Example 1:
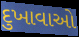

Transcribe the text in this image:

દુખાવાઓ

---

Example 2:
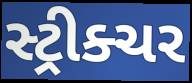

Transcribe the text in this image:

સ્ટ્રીક્ચર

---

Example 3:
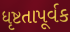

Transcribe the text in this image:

ધૃષ્ટતાપૂર્વક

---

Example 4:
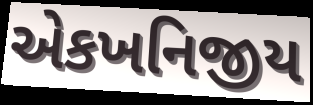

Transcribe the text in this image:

એકખનિજીય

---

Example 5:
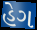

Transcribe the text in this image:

હેગ